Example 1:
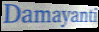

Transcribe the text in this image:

Damayanti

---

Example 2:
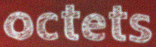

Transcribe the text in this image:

octets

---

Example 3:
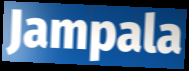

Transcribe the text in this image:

Jampala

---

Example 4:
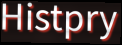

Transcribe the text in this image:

Histpry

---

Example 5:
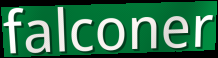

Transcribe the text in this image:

falconer